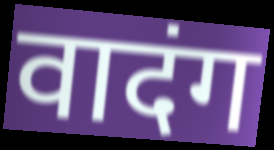
वादंग